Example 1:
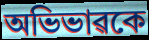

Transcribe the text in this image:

অভিভাৱকে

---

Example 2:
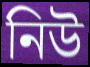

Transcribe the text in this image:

নিউ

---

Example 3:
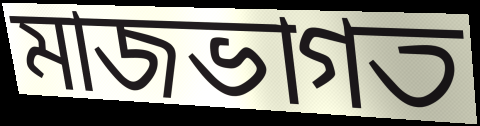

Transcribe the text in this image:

মাজভাগত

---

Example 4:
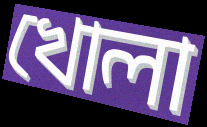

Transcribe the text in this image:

খোলা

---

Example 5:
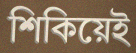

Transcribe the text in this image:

শিকিয়েই